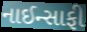
નાઈન્સાફી